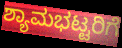
ಶ್ಯಾಮಭಟ್ಟರಿಗೆ